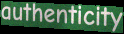
authenticity